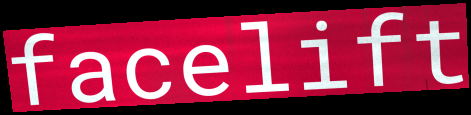
facelift